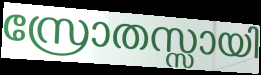
സ്രോതസ്സായി